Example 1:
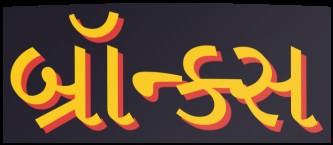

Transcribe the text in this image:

બ્રૉન્ક્સ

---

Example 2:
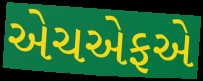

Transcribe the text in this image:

એચએફએ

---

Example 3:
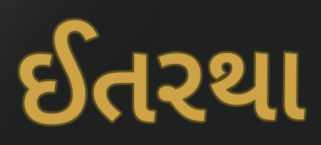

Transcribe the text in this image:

ઈતરથા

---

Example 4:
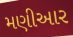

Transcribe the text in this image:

મણીઆર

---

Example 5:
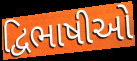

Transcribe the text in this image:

દ્વિભાષીઓ